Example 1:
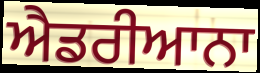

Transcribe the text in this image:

ਐਡਰੀਆਨਾ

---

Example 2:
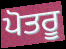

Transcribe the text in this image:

ਪੋਤਰੂ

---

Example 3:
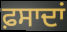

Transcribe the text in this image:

ਫ਼ਸਾਦਾਂ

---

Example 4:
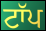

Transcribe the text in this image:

ਟਾੱਪ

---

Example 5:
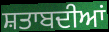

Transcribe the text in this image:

ਸ਼ਤਾਬਦੀਆਂ